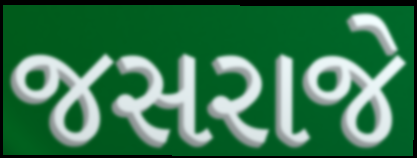
જસરાજે